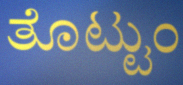
ತೊಟ್ಟುಂ